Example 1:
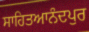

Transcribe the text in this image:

ਸਾਹਿਤਆਨੰਦਪੁਰ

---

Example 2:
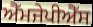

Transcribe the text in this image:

ਐੱਮਜੇਪੀਐੱਸ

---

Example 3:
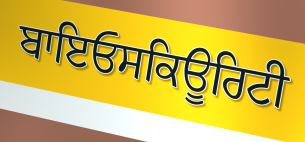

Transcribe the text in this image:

ਬਾਇਓਸਕਿਊਰਿਟੀ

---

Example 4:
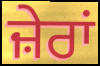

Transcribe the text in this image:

ਜ਼ੇਰਾਂ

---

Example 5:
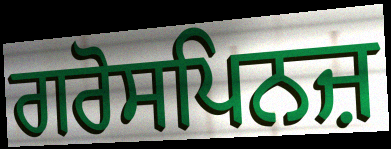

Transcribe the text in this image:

ਗਰੋਸਪਿਨਜ਼